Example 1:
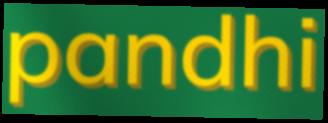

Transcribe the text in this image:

pandhi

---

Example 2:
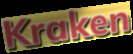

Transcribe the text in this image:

Kraken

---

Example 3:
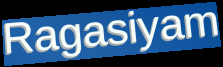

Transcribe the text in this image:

Ragasiyam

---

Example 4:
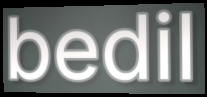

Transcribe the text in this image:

bedil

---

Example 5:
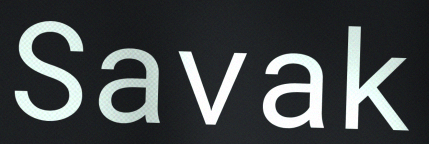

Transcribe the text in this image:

Savak